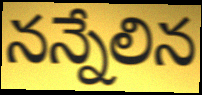
నన్నేలిన